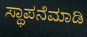
ಸ್ಥಾಪನೆಮಾಡಿ